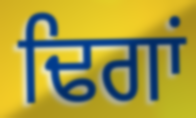
ਢਿਗਾਂ